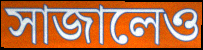
সাজালেও